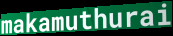
makamuthurai